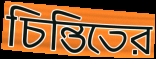
চিন্তিতের